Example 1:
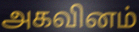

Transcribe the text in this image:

அகவினம்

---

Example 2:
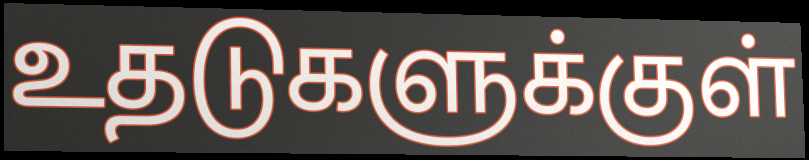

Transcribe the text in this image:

உதடுகளுக்குள்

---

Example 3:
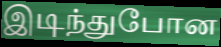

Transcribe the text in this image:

இடிந்துபோன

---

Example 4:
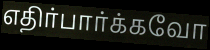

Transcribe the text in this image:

எதிர்பார்க்கவோ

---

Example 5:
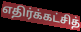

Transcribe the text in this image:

எதிர்க்கட்சித்